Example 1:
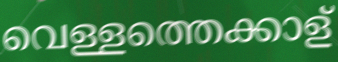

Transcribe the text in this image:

വെള്ളത്തെക്കാള്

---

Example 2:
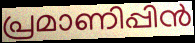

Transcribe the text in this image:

പ്രമാണിപ്പിൻ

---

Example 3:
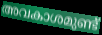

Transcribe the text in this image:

അവകാശമുണ്ട്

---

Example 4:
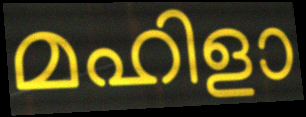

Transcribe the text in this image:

മഹിളാ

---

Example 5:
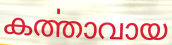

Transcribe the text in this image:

കൎത്താവായ